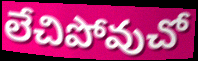
లేచిపోవుచో